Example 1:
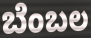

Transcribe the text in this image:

ಬೆಂಬಲ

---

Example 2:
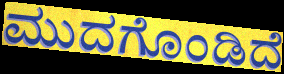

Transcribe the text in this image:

ಮುದಗೊಂಡಿದೆ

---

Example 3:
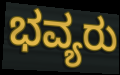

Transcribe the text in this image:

ಭವ್ಯರು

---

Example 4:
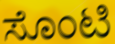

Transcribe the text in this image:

ಸೊಂಟಿ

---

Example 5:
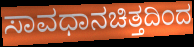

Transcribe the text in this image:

ಸಾವಧಾನಚಿತ್ತದಿಂದ